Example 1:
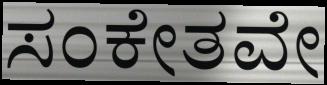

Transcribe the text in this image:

ಸಂಕೇತವೇ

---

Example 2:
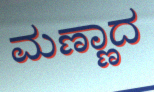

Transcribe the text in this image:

ಮಣ್ಣಾದ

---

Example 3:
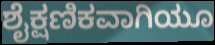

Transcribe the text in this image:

ಶೈಕ್ಷಣಿಕವಾಗಿಯೂ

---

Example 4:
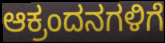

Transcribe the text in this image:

ಆಕ್ರಂದನಗಳಿಗೆ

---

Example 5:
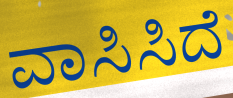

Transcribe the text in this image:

ವಾಸಿಸಿದೆ